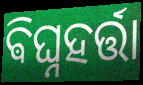
ଵିଘ୍ନହର୍ତ୍ତା